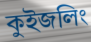
কুইজলিং